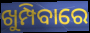
ଖୁମ୍ପିବାରେ